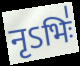
नृऽभिः॑